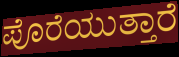
ಪೊರೆಯುತ್ತಾರೆ